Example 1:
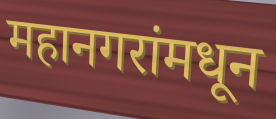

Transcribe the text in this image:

महानगरांमधून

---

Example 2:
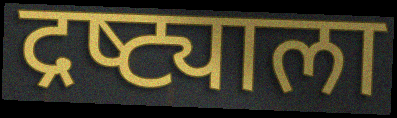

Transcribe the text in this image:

द्रष्ट्याला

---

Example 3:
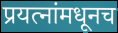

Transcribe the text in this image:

प्रयत्नांमधूनच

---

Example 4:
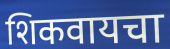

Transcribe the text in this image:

शिकवायचा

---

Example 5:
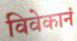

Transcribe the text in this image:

विवेकानं